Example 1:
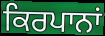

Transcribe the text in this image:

ਕਿਰਪਾਨਾਂ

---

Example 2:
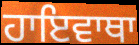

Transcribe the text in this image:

ਹਾਇਵਾਥਾ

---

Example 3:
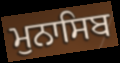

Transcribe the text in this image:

ਮੁਨਾਸਿਬ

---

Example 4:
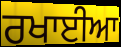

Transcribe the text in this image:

ਰਖਾਈਆ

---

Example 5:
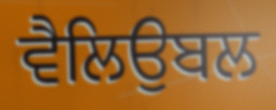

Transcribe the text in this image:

ਵੈਲਿਉਬਲ